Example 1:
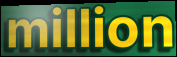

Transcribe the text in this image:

million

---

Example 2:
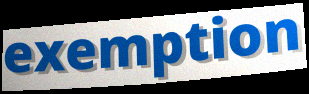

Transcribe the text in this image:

exemption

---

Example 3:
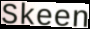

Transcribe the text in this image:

Skeen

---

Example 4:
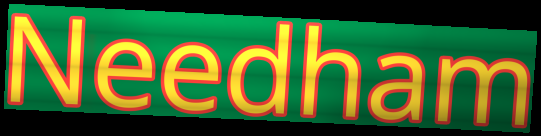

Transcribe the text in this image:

Needham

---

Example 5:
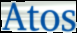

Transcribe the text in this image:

Atos